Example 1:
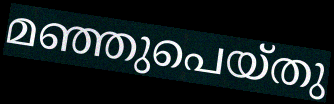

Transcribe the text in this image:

മഞ്ഞുപെയ്തു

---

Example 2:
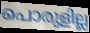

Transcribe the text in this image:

പൊരുളില്ല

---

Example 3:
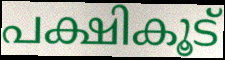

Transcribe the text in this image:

പക്ഷികൂട്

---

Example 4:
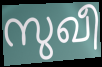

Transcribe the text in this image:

സുഖീ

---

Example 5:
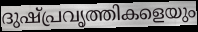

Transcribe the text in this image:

ദുഷ്പ്രവൃത്തികളെയും